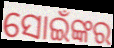
ସୋଇଁଙ୍କର